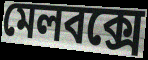
মেলবক্সে